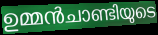
ഉമ്മൻചാണ്ടിയുടെ